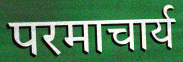
परमाचार्य